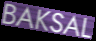
BAKSAL